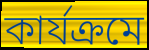
কার্যক্রমে